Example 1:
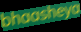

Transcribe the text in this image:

bhaasheya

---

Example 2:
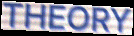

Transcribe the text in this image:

THEORY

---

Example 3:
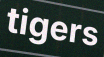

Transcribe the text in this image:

tigers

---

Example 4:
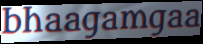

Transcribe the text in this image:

bhaagamgaa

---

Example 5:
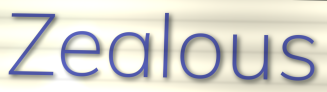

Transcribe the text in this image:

Zealous